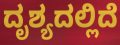
ದೃಶ್ಯದಲ್ಲಿದೆ